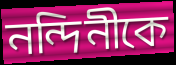
নন্দিনীকে